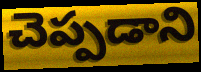
చెప్పడాని